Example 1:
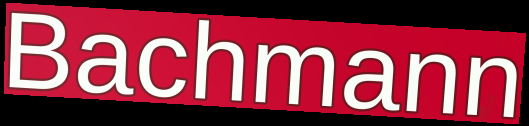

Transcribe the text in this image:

Bachmann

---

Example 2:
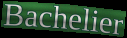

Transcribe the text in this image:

Bachelier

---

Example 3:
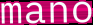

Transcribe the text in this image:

mano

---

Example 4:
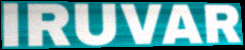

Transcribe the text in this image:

IRUVAR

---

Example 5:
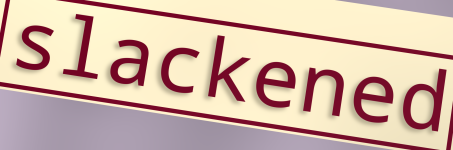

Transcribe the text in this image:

slackened